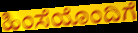
ಹಿಂಸೆಯೊಂದಿಗೆ